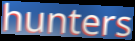
hunters